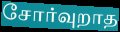
சோர்வுறாத